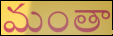
మంతా